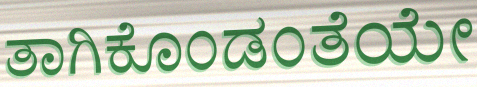
ತಾಗಿಕೊಂಡಂತೆಯೇ